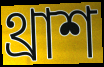
থ্রাশ